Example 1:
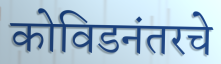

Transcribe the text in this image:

कोविडनंतरचे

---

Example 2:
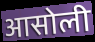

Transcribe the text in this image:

आसोली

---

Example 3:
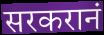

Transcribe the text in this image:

सरकरानं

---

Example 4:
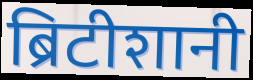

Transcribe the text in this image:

ब्रिटीशानी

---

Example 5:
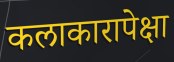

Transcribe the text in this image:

कलाकारापेक्षा